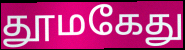
தூமகேது